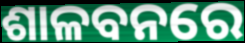
ଶାଳବନରେ